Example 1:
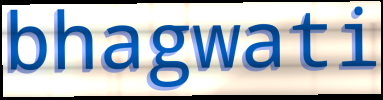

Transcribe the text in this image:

bhagwati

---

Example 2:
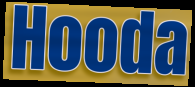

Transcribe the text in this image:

Hooda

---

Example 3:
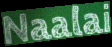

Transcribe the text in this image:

Naalai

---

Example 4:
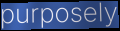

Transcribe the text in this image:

purposely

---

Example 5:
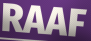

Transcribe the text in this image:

RAAF